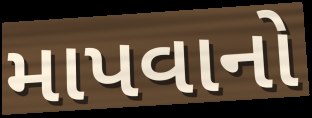
માપવાનો